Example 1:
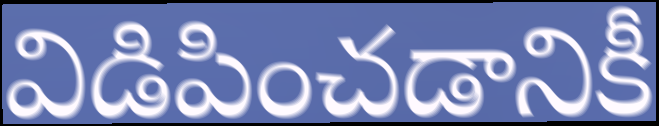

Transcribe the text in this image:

విడిపించడానికీ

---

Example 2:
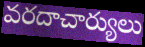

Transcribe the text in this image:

వరదాచార్యులు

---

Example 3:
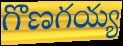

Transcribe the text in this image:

గొణగయ్య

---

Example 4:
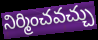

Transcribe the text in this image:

నిర్మించవచ్చు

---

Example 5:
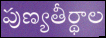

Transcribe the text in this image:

పుణ్యతీర్థాల